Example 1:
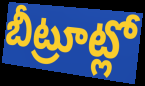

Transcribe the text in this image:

బీట్రూట్లో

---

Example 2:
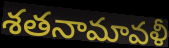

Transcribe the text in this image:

శతనామావళీ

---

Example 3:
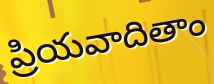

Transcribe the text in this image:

ప్రియవాదితాం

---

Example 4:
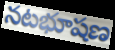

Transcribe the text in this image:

నటభూషణ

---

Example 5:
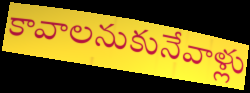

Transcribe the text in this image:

కావాలనుకునేవాళ్లు